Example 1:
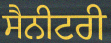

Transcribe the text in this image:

ਸੈਨੀਟਰੀ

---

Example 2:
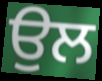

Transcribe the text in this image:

ਉਲ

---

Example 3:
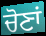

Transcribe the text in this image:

ਚੋਣਾਂ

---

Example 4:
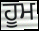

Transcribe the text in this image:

ਹੂਮ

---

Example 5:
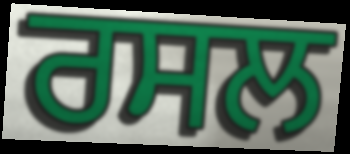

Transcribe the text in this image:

ਰਸਲ